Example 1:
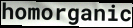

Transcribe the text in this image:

homorganic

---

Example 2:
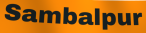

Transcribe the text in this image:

Sambalpur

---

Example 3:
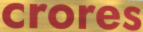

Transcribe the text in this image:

crores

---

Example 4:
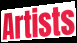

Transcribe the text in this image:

Artists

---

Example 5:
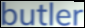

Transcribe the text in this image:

butler